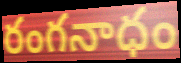
రంగనాధం